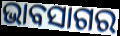
ଭାବସାଗର